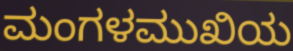
ಮಂಗಳಮುಖಿಯ